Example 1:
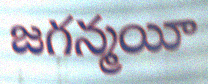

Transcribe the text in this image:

జగన్మయీ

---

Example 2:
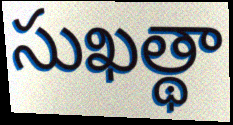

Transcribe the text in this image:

సుఖత్థా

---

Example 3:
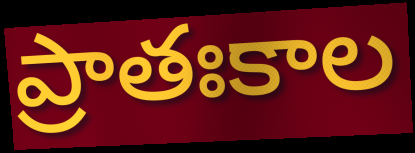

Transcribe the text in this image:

ప్రాతఃకాల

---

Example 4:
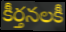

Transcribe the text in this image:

కీర్తనలకీ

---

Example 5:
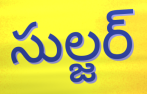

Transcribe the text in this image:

సుల్జర్